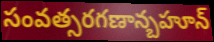
సంవత్సరగణాన్బహూన్